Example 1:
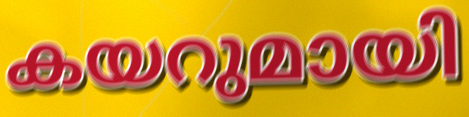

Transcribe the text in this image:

കയറുമായി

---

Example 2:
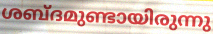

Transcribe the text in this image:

ശബ്ദമുണ്ടായിരുന്നു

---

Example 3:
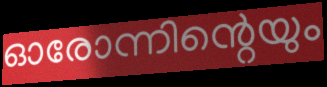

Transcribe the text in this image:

ഓരോന്നിന്റെയും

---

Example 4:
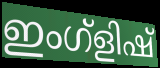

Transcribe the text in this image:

ഇംഗ്ളിഷ്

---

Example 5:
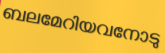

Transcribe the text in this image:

ബലമേറിയവനോടു